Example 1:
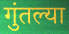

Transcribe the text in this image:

गुंतल्या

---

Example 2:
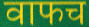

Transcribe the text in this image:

वाफच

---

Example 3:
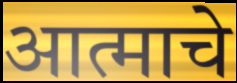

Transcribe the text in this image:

आत्माचे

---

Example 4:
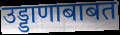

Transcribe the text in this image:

उड्डाणाबाबत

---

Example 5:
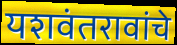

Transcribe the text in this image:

यशवंतरावांचे